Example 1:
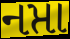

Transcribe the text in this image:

નપ્તા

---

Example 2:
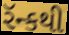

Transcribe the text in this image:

રૅન્કથી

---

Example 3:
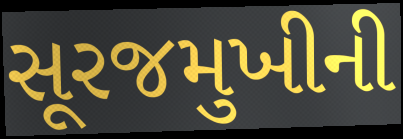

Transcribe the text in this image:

સૂરજમુખીની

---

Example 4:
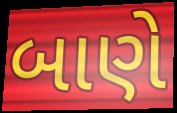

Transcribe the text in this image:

બાણે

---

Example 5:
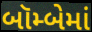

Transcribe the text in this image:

બૉમ્બેમાં